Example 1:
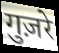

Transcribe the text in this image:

गुज़रे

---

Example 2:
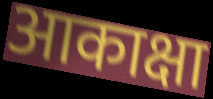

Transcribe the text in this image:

आकाक्षा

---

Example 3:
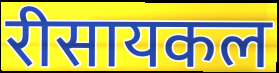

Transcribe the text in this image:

रीसायकल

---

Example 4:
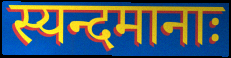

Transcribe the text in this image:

स्यन्दमानाः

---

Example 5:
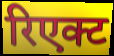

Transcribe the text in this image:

रिएक्ट